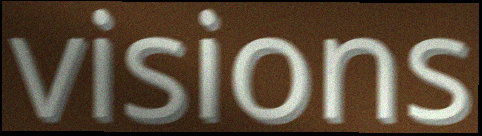
visions